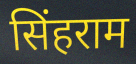
सिंहराम